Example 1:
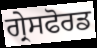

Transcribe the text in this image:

ਗ੍ਰੇਸਫੋਰਡ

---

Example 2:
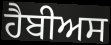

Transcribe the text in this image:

ਹੈਬੀਅਸ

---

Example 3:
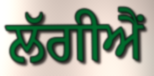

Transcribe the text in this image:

ਲੱਗੀਐਂ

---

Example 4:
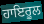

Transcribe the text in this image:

ਹਾਇਰੂਲ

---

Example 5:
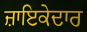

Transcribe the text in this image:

ਜ਼ਾਇਕੇਦਾਰ